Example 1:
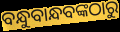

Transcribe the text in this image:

ବନ୍ଧୁବାନ୍ଧବଙ୍କଠାରୁ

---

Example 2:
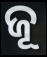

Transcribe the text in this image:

ଜୂ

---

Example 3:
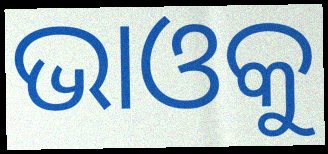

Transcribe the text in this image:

ଭାଓକୁ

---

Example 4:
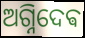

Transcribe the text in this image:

ଅଗ୍ନିଦେଵ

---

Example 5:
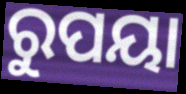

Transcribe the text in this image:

ରୁପୟା